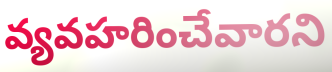
వ్యవహరించేవారని